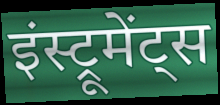
इंस्‍ट्रूमेंट्स